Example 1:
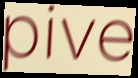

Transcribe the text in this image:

pive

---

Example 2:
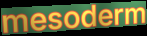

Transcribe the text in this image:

mesoderm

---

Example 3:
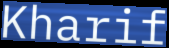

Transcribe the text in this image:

Kharif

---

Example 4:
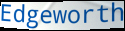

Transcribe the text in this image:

Edgeworth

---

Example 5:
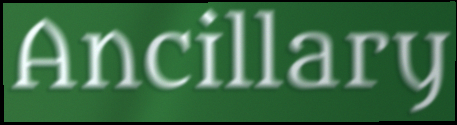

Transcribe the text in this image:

Ancillary